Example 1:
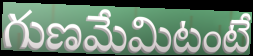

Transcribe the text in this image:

గుణమేమిటంటే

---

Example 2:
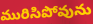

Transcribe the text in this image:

మురిసిపోవును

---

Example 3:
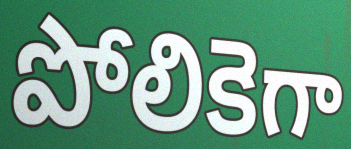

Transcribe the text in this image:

పోలికెగా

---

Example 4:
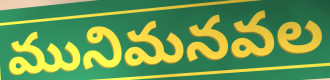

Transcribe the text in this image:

మునిమనవల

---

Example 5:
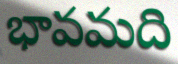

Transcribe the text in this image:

భావమది